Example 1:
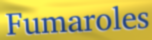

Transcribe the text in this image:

Fumaroles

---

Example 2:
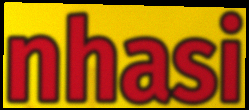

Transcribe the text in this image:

nhasi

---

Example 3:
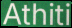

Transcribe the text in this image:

Athiti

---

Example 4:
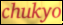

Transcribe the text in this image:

chukyo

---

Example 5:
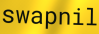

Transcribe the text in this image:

swapnil